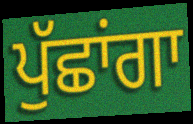
ਪੁੱਛਾਂਗਾ